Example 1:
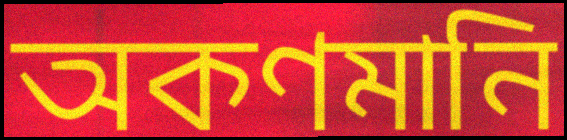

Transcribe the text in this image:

অকণমানি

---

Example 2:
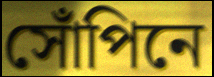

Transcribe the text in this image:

সোঁপিনে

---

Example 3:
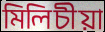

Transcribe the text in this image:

মিলিচীয়া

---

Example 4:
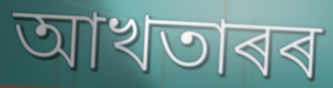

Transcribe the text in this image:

আখতাৰৰ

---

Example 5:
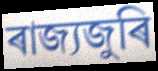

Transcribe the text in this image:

ৰাজ্যজুৰি